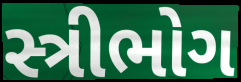
સ્ત્રીભોગ